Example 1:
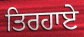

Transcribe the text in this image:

ਤਿਰਹਾਏ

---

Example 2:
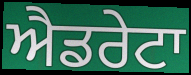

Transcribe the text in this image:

ਐਡਰੇਟਾ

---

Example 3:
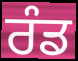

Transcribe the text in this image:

ਰੰਡ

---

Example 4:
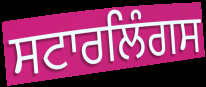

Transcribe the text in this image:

ਸਟਾਰਲਿੰਗਸ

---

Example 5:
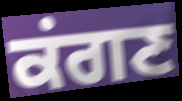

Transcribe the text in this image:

ਕਂਗਣ